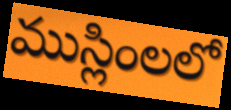
ముస్లింలలో